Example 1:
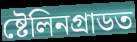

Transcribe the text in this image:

ষ্টেলিনগ্ৰাডত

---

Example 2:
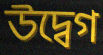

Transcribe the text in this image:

উদ্বেগ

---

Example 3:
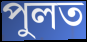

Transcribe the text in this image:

পুলত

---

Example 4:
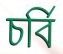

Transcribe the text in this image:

চৰ্বি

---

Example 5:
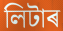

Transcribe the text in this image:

লিটাৰ